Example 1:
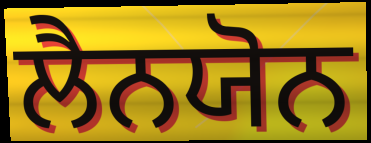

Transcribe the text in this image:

ਲੈਨਯੋਨ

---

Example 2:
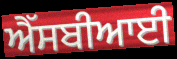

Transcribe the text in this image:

ਐੱਸਬੀਆਈ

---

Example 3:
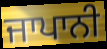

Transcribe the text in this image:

ਜਾਪਾਨੀ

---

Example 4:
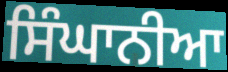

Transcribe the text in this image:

ਸਿੰਘਾਨੀਆ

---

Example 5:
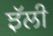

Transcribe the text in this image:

ਝੱਲੀ